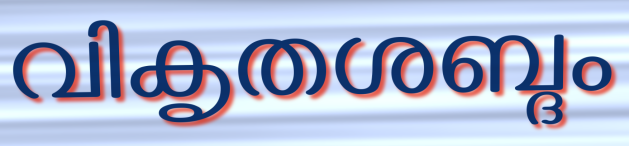
വികൃതശബ്ദം